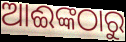
ଆଈଙ୍କଠାରୁ